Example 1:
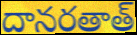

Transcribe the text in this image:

దానరతాత్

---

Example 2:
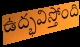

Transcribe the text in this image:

ఉద్భవిస్తోంది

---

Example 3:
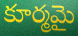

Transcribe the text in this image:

కూర్మమై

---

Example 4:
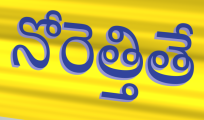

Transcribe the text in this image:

నోరెత్తితే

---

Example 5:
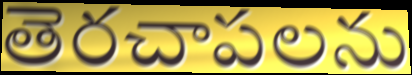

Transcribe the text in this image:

తెరచాపలను